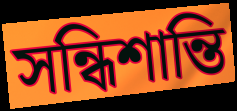
সন্ধিশান্তি